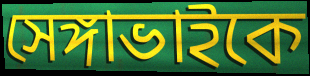
সেঙ্গাভাইকে